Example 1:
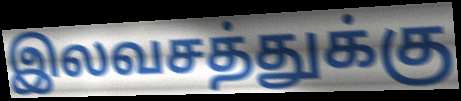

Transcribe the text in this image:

இலவசத்துக்கு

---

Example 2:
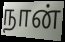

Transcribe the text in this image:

நான்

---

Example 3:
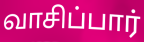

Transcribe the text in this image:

வாசிப்பார்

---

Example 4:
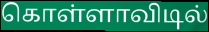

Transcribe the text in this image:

கொள்ளாவிடில்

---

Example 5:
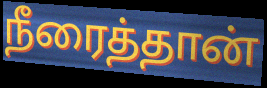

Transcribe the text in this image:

நீரைத்தான்